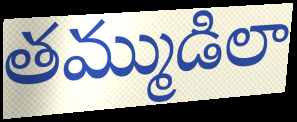
తమ్ముడిలా